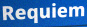
Requiem